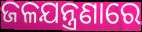
ଜଳଯନ୍ତ୍ରଣାରେ